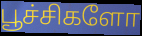
பூச்சிகளோ